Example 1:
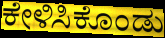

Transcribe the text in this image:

ಕೇಳಿಸಿಕೊಂಡು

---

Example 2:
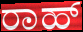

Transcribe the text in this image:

ರಾಹ್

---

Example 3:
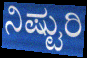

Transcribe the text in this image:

ನಿಷ್ಟುರಿ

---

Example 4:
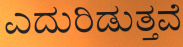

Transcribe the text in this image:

ಎದುರಿಡುತ್ತವೆ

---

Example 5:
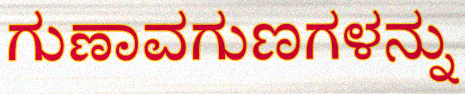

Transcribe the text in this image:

ಗುಣಾವಗುಣಗಳನ್ನು